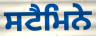
ਸਟੈਮਿਨੇ